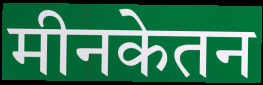
मीनकेतन